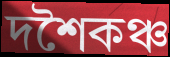
দশৈকঞ্চ